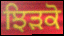
ਝਿੜਕੋ